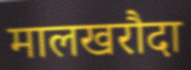
मालखरौदा